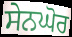
ਸੇਨਘੋਰ